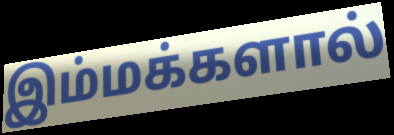
இம்மக்களால்